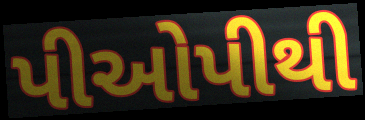
પીઓપીથી